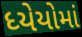
ધ્યેયોમાં